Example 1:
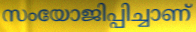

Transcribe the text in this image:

സംയോജിപ്പിച്ചാണ്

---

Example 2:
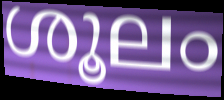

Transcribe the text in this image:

ശൂലം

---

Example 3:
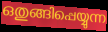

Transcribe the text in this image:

ഒതുങ്ങിപ്പെയ്യുന്ന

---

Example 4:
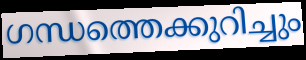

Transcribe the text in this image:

ഗന്ധത്തെക്കുറിച്ചും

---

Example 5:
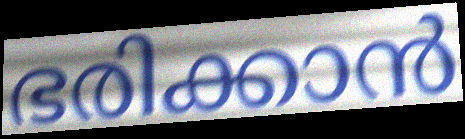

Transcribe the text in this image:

ഭരിക്കാൻ